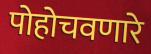
पोहोचवणारे